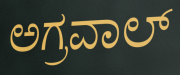
ಅಗ್ರವಾಲ್